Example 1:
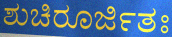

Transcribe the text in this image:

ಶುಚಿರೂರ್ಜಿತಃ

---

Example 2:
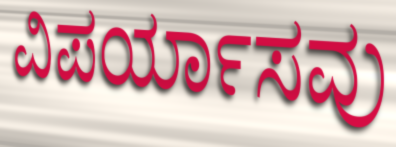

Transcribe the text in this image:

ವಿಪರ್ಯಾಸವು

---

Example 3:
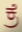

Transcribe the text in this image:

ಕ್ರೆ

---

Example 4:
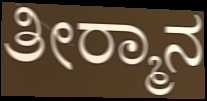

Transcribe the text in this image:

ತೀರ‍್ಮಾನ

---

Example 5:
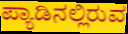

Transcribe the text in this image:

ಪ್ಯಾಡಿನಲ್ಲಿರುವ